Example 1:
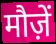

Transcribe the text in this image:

मौज़ें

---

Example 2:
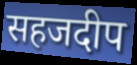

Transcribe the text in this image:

सहजदीप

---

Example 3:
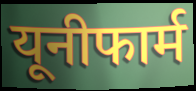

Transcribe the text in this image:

यूनीफार्म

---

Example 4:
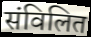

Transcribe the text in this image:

संविलित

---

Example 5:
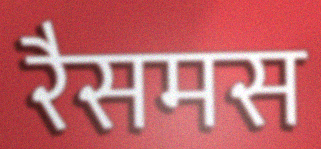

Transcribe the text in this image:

रैसमस